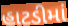
હાટડીમાં